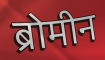
ब्रोमीन